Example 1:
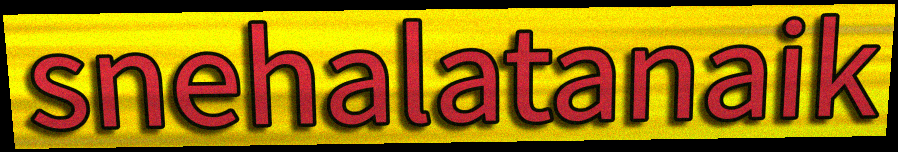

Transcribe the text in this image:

snehalatanaik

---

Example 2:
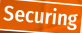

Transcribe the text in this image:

Securing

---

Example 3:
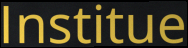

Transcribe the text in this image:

Institue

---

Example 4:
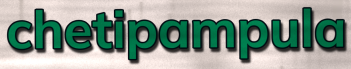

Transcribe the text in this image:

chetipampula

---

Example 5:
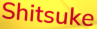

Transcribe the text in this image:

Shitsuke